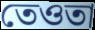
তেওতা